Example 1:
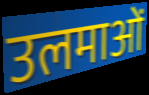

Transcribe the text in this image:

उलमाओं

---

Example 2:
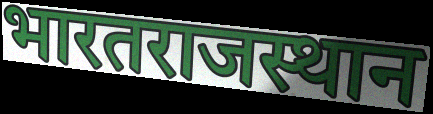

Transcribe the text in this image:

भारतराजस्थान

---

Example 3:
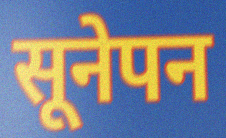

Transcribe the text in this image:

सूनेपन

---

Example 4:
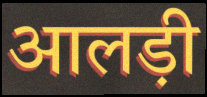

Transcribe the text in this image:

आलड़ी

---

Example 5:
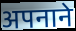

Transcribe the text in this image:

अपनाने